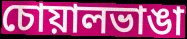
চোয়ালভাঙা